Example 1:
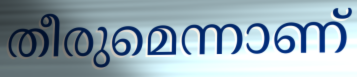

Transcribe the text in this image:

തീരുമെന്നാണ്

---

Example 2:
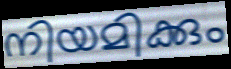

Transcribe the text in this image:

നിയമിക്കും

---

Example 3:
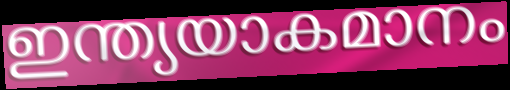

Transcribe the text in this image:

ഇന്ത്യയാകമാനം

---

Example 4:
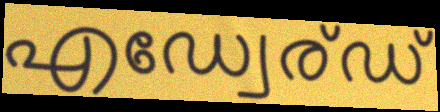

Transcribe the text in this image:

എഡ്വേര്ഡ്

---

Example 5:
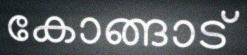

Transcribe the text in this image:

കോങ്ങാട്